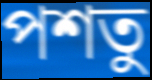
পশতু